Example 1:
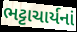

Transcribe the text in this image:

ભટ્ટાચાર્યનાં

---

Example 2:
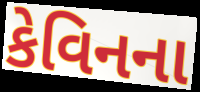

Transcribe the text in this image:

કેવિનના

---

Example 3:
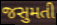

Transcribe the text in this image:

જસુમતી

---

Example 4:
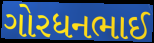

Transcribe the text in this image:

ગોરધનભાઈ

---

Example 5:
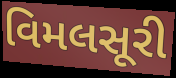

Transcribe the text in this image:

વિમલસૂરી